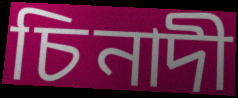
চিনাদী